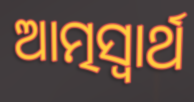
ଆତ୍ମସ୍ଵାର୍ଥ